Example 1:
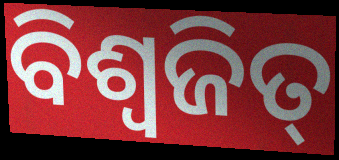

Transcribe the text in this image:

ବିଶ୍ୱଜିତ୍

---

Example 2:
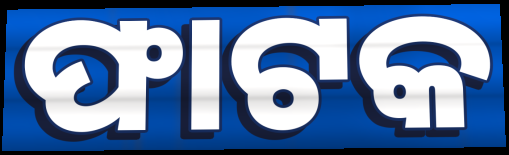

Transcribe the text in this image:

ଫାଟକ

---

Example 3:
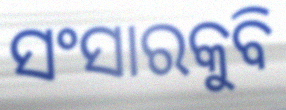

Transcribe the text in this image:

ସଂସାରକୁବି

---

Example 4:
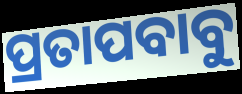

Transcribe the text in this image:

ପ୍ରତାପବାବୁ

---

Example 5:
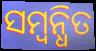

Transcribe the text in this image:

ସମ୍ବନ୍ଧିତ